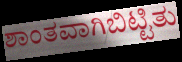
ಶಾಂತವಾಗಿಬಿಟ್ಟಿತು